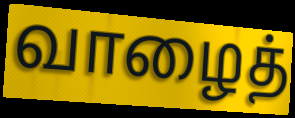
வாழைத்